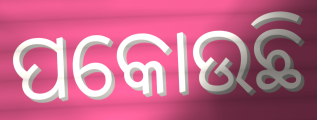
ପକୋଉଛି